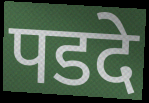
पडदे